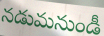
నడుమనుండీ